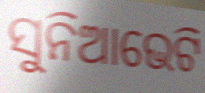
ସୁନିଆଭେଟି